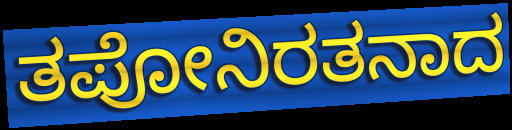
ತಪೋನಿರತನಾದ